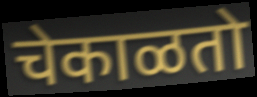
चेकाळतो